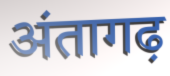
अंतागढ़